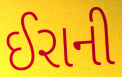
ઈરાની